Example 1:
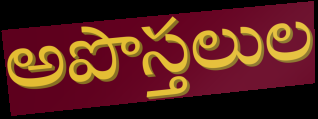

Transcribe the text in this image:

అపొస్తలుల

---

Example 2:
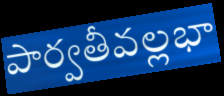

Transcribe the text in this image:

పార్వతీవల్లభా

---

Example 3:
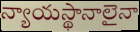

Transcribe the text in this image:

న్యాయస్థానాలైనా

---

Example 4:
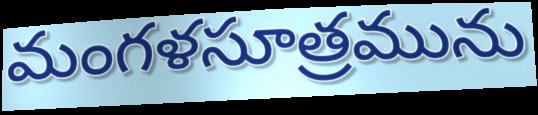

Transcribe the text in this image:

మంగళసూత్రమును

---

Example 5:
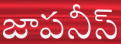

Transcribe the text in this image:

జాపనీస్